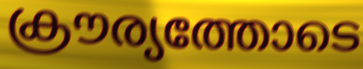
ക്രൗര്യത്തോടെ